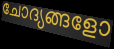
ചോദ്യങ്ങളോ